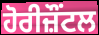
ਹੋਰੀਜ਼ੌਂਟਲ